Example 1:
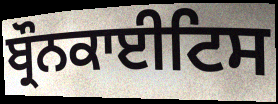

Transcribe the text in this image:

ਬ੍ਰੌਨਕਾਈਟਿਸ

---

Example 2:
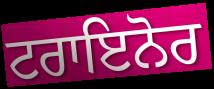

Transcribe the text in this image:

ਟਰਾਇਨੋਰ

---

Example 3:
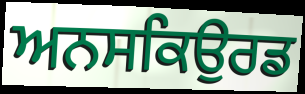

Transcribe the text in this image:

ਅਨਸਕਿਉਰਡ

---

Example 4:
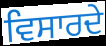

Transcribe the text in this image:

ਵਿਸਾਰਦੇ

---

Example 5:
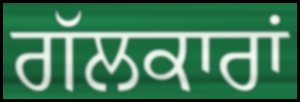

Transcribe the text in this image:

ਗੱਲਕਾਰਾਂ